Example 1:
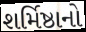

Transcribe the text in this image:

શર્મિષ્ઠાનો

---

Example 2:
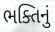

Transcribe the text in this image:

ભક્તિનું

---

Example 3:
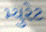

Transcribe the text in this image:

મ્યુરેટ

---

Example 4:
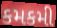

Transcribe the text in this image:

કમકમી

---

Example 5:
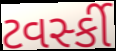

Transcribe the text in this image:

ટવર્સ્કી